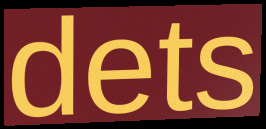
dets